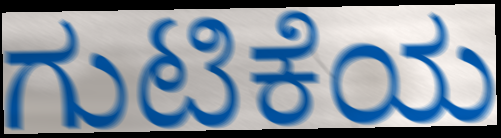
ಗುಟಿಕೆಯ